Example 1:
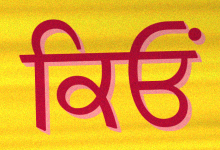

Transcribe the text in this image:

ਕਿਓਂ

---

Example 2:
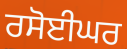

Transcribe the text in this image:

ਰਸੋਈਘਰ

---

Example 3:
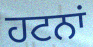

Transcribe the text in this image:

ਹਟਨਾਂ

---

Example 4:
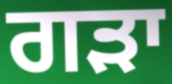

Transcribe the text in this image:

ਗੜਾ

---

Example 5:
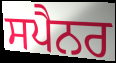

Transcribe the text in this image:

ਸਪੈਨਰ